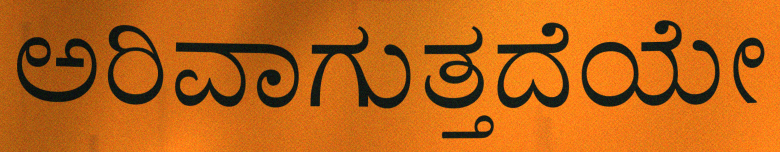
ಅರಿವಾಗುತ್ತದೆಯೇ